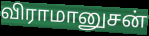
விராமானுசன்